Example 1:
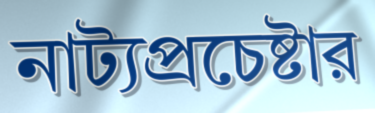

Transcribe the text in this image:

নাট্যপ্রচেষ্টার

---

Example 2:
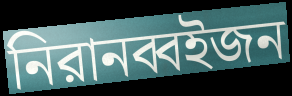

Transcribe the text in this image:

নিরানব্বইজন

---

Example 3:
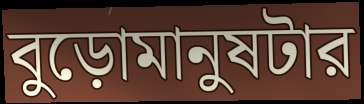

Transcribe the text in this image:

বুড়োমানুষটার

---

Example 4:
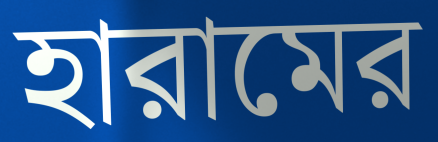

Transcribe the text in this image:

হারামের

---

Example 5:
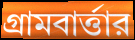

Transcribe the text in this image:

গ্রামবার্ত্তার